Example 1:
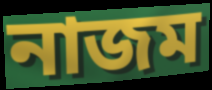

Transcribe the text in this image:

নাজম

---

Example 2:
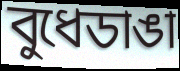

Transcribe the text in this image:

বুধেডাঙা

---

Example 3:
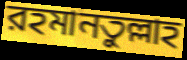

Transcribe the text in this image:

রহমানতুল্লাহ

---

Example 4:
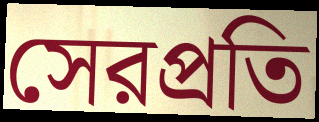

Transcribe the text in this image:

সেরপ্রতি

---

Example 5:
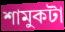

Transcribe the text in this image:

শামুকটা